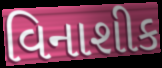
વિનાશીક